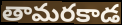
తామరకాడ